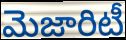
మెజారిటీ